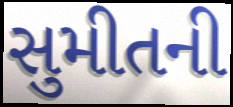
સુમીતની